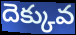
దెక్కువ